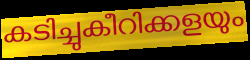
കടിച്ചുകീറിക്കളയും